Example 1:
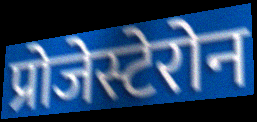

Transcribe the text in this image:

प्रोजेस्टेरोन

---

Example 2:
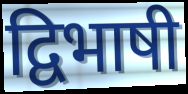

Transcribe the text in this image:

द्विभाषी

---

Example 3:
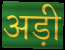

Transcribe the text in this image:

अड़ी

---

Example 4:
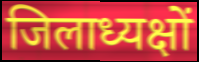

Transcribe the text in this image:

जिलाध्यक्षों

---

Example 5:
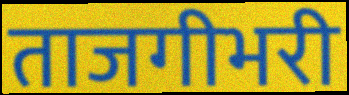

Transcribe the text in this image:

ताजगीभरी